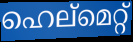
ഹെല്മെറ്റ്